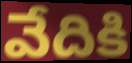
వేదికి